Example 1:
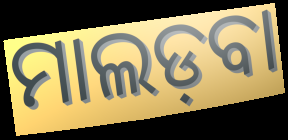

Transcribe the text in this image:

ମାଲଡ଼ବା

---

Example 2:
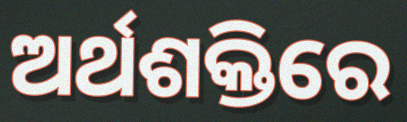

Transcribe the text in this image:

ଅର୍ଥଶକ୍ତିରେ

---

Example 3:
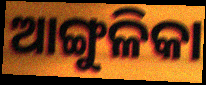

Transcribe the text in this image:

ଆଙ୍ଗୁଳିକା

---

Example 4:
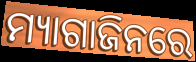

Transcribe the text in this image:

ମ୍ୟାଗାଜିନରେ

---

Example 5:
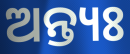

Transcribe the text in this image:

ଅନ୍ତ୍ୟଃ